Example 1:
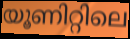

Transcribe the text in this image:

യൂണിറ്റിലെ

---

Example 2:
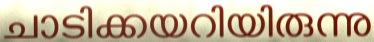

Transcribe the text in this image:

ചാടിക്കയറിയിരുന്നു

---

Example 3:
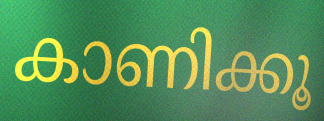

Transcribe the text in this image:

കാണിക്കൂ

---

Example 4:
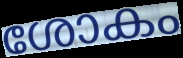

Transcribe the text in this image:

ശോകം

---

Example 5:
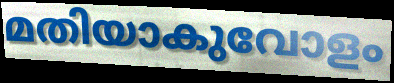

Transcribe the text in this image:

മതിയാകുവോളം